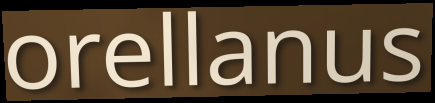
orellanus